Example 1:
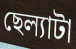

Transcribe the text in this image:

ছেল্যাটা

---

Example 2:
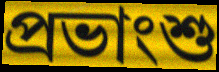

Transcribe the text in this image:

প্রভাংশু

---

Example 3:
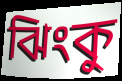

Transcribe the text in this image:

ঝিংকু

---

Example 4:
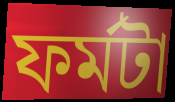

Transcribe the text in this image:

ফর্মটা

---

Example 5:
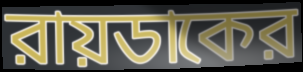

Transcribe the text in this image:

রায়ডাকের